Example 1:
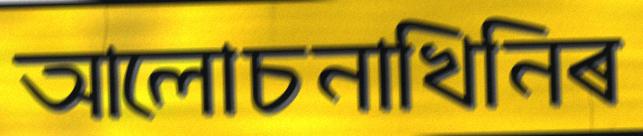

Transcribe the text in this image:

আলোচনাখিনিৰ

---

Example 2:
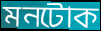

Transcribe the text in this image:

মনটোক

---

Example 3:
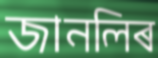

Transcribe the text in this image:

জানলিৰ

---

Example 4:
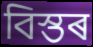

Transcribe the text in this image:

বিস্তৰ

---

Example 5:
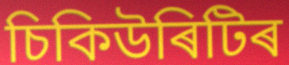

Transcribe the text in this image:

চিকিউৰিটিৰ